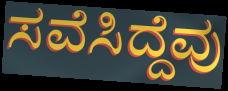
ಸವೆಸಿದ್ದೆವು